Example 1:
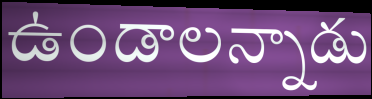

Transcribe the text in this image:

ఉండాలన్నాడు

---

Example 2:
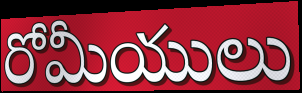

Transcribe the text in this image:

రోమీయులు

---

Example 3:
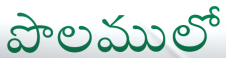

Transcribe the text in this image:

పొలములో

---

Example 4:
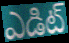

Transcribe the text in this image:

ఎడిట్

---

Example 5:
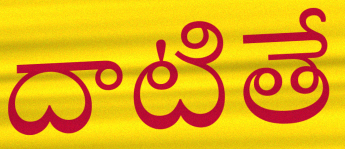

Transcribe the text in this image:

దాటితే